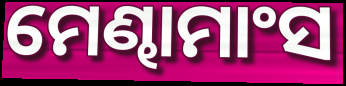
ମେଣ୍ଢାମାଂସ